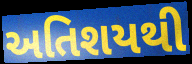
અતિશયથી